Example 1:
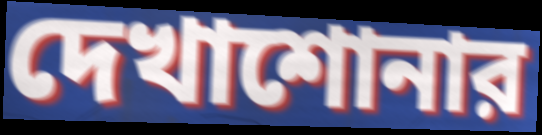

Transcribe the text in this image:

দেখাশোনার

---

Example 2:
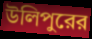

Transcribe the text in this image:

উলিপুরের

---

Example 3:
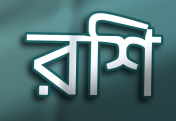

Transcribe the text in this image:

রশি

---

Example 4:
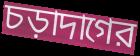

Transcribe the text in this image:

চড়াদাগের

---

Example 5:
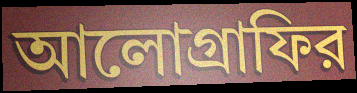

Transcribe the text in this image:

আলোগ্রাফির